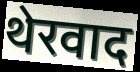
थेरवाद